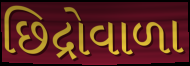
છિદ્રોવાળા